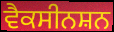
ਵੈਕਸੀਨਸ਼ਨ